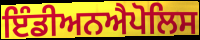
ਇੰਡੀਅਨਐਪੋਲਿਸ